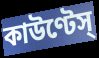
কাউণ্টেস্